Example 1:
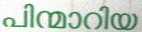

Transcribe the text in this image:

പിന്മാറിയ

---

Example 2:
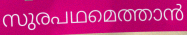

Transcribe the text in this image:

സുരപഥമെത്താൻ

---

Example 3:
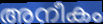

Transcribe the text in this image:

അനീകം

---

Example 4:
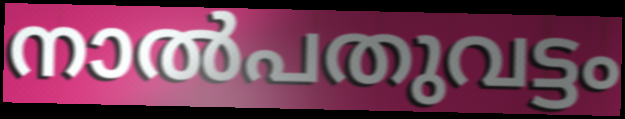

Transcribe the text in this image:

നാൽപതുവട്ടം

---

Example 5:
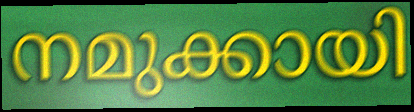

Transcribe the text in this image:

നമുക്കായി